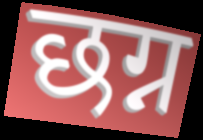
छग्न